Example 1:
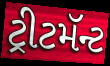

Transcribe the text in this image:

ટ્રીટમૅન્ટ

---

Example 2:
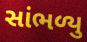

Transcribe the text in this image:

સાંભળ્યુ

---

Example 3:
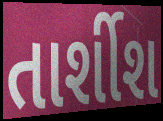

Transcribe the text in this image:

તાર્શીશ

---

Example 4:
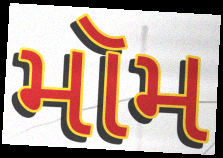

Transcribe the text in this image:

મૉમ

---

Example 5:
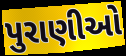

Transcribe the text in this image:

પુરાણીઓ